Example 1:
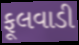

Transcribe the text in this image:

ફૂલવાડી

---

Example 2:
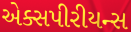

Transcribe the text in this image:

એક્સપીરીયન્સ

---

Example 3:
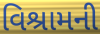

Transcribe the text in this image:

વિશ્રામની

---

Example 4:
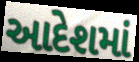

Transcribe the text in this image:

આદેશમાં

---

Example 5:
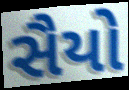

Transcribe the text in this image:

સૈયો